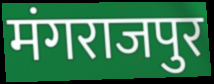
मंगराजपुर